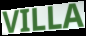
VILLA